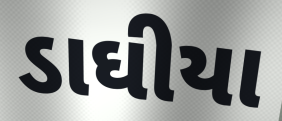
ડાઘીયા